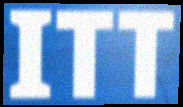
ITT